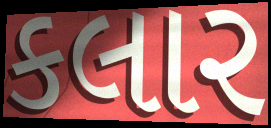
કલાર